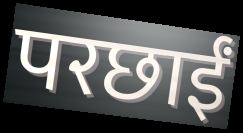
परछाईं